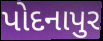
પોદનાપુર